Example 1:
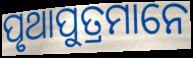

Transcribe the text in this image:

ପୃଥାପୁତ୍ରମାନେ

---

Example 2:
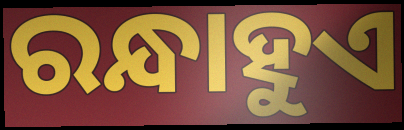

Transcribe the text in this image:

ରନ୍ଧାହୁଏ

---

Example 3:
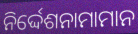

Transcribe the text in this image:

ନିର୍ଦ୍ଦେଶନାମାମାନ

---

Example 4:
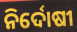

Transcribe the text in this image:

ନିର୍ଦୋଷୀ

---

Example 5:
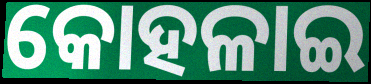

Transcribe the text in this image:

କୋହଳାଇ